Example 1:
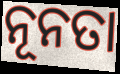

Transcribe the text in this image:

ନୂନତା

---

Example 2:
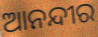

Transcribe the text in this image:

ଆନନ୍ଦୀର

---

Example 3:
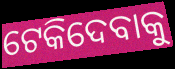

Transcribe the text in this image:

ଟେକିଦେବାକୁ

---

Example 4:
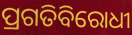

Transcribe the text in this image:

ପ୍ରଗତିବିରୋଧୀ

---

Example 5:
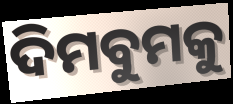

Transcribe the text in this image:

ଦିମବୁମକୁ